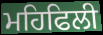
ਮਹਿਫਿਲੀ